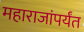
महाराजांपर्यंत